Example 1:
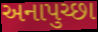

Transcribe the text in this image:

અનાપુચ્છા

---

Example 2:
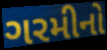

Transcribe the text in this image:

ગરમીનો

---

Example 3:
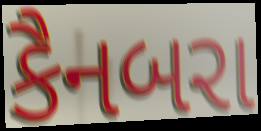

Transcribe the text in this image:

કૈનબરા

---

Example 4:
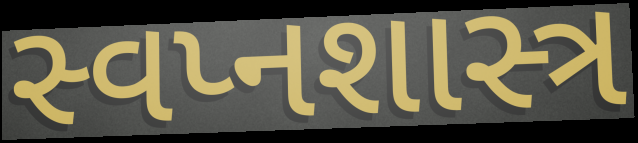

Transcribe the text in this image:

સ્વપ્નશાસ્ત્ર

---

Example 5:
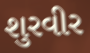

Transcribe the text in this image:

શુરવીર